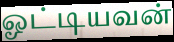
ஓட்டியவன்